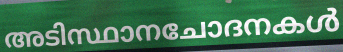
അടിസ്ഥാനചോദനകൾ